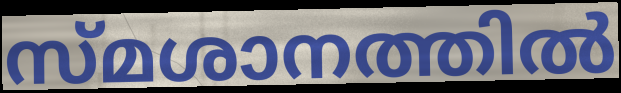
സ്മശാനത്തിൽ